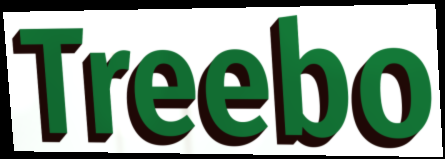
Treebo